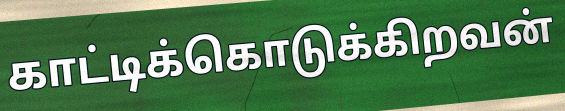
காட்டிக்கொடுக்கிறவன்